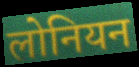
लोनियन